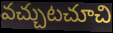
వచ్చుటచూచి